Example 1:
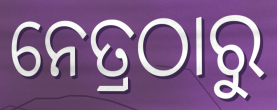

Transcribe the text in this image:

ନେତ୍ରଠାରୁ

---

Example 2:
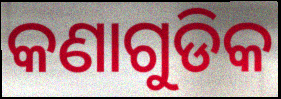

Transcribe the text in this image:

କଣାଗୁଡିକ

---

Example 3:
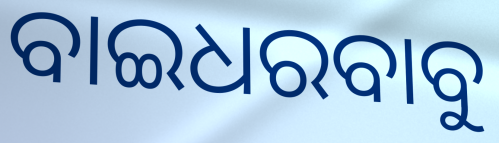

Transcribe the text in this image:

ବାଇଧରବାବୁ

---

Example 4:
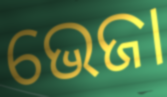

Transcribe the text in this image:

ଭେଜା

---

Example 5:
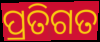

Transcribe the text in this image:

ପ୍ରତିଗତ